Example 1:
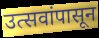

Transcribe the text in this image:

उत्सवांपासून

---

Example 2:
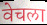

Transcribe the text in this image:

वेचला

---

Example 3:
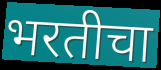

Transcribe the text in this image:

भरतीचा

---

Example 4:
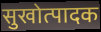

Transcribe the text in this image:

सुखोत्पादक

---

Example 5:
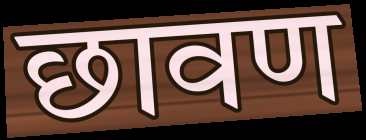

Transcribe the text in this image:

छावण